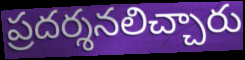
ప్రదర్శనలిచ్చారు